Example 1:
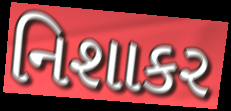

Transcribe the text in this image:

નિશાકર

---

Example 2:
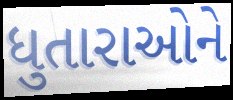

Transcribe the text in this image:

ધુતારાઓને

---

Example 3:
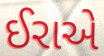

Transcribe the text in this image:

ઈરાએ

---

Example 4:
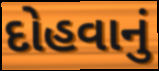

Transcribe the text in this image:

દોહવાનું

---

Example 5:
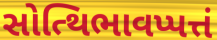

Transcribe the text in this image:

સોત્થિભાવપ્પત્તં